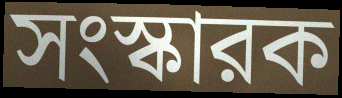
সংস্কারক